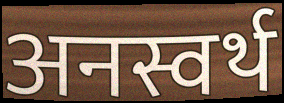
अनस्वर्थ